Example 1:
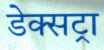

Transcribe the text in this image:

डेक्सट्रा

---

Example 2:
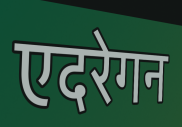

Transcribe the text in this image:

एदरेगन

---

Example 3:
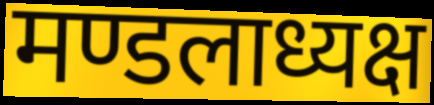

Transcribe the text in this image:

मण्डलाध्यक्ष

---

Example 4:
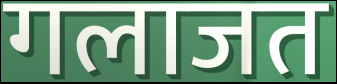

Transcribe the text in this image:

गलाजत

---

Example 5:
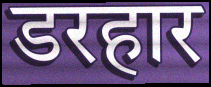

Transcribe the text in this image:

डरहार